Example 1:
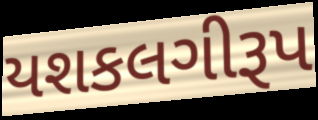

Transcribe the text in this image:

યશકલગીરૂપ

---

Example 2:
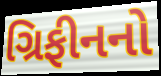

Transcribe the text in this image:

ગ્રિફીનનો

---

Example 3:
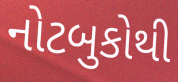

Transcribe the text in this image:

નોટબુકોથી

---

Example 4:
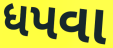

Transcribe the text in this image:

ધપવા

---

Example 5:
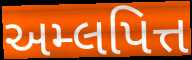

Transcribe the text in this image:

અમ્લપિત્ત